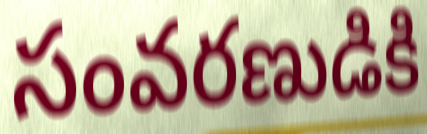
సంవరణుడికి